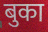
बुका